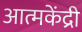
आत्मकेंद्री